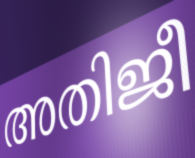
അതിജീ